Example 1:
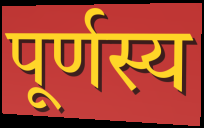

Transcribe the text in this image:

पूर्णस्य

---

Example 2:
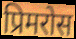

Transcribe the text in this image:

प्रिमरोस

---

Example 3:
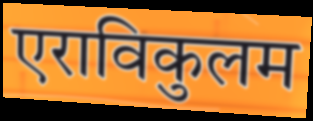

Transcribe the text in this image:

एराविकुलम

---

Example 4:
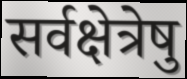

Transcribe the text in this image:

सर्वक्षेत्रेषु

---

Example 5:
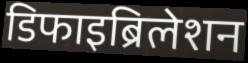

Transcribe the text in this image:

डिफाइब्रिलेशन